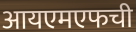
आयएमएफची